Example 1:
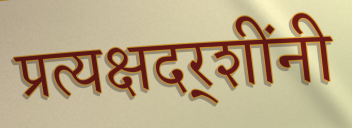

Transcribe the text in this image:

प्रत्यक्षदर्शींनी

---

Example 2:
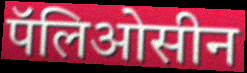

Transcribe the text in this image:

पॅलिओसीन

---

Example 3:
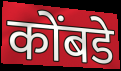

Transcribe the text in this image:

कोंबडे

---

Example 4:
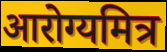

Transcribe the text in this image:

आरोग्यमित्र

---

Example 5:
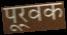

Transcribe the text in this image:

पूर्वक